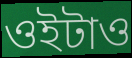
ওইটাও